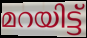
മറയിട്ട്